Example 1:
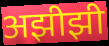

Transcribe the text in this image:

अझीझी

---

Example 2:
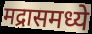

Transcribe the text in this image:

मद्रासमध्ये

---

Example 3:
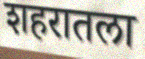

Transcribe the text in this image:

शहरातला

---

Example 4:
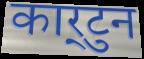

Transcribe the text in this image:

कार्टुन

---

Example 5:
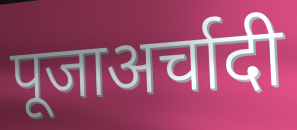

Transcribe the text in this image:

पूजाअर्चादी